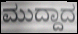
ಮುದ್ದಾದ